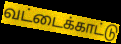
வட்டைக்காட்டு